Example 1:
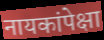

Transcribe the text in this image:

नायकांपेक्षा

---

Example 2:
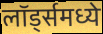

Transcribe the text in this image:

लॉर्ड्समध्ये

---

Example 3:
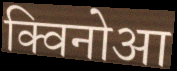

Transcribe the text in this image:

क्विनोआ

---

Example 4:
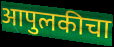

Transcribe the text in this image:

आपुलकीचा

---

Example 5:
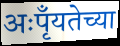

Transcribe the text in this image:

अःपृँयतेच्या